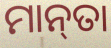
ମାନ୍‌ତା